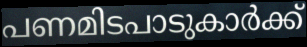
പണമിടപാടുകാർക്ക്